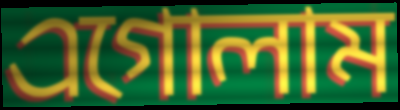
এগোলাম